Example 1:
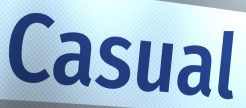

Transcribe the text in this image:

Casual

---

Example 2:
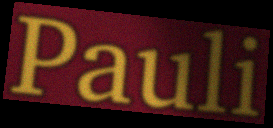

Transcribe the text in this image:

Pauli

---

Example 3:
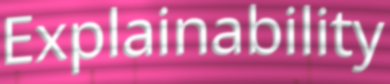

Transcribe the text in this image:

Explainability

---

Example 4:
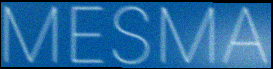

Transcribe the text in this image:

MESMA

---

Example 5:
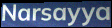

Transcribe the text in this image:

Narsayya